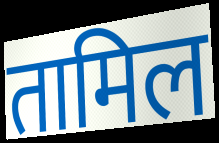
तामिल